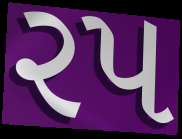
રપ